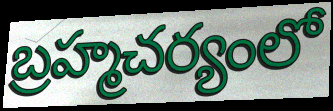
బ్రహ్మచర్యంలో